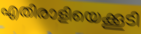
എതിരാളിയെക്കൂടി